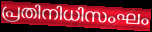
പ്രതിനിധിസംഘം